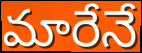
మారేనే